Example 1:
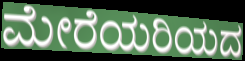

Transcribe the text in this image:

ಮೇರೆಯರಿಯದ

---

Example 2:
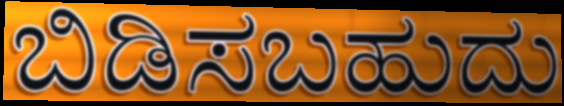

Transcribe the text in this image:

ಬಿಡಿಸಬಹುದು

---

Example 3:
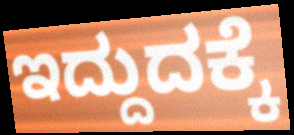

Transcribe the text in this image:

ಇದ್ದುದಕ್ಕೆ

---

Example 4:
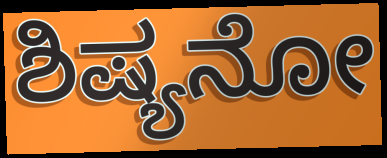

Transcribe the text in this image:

ಶಿಷ್ಯನೋ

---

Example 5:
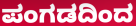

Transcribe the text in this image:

ಪಂಗಡದಿಂದ